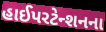
હાઈપરટેન્શનના